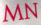
MN